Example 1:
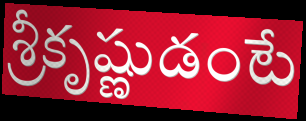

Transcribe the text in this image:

శ్రీకృష్ణుడంటే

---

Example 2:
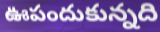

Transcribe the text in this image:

ఊపందుకున్నది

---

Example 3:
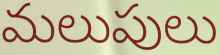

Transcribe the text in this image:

మలుపులు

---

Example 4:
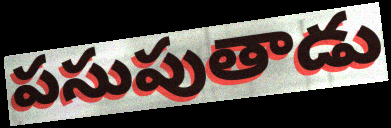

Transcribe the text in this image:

పసుపుతాడు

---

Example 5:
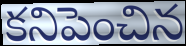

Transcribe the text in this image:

కనిపెంచిన